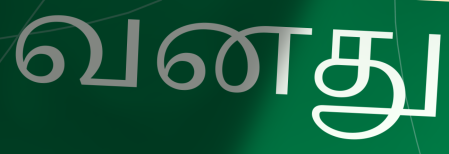
வனது